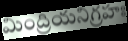
మింద్రియనిగ్రహః